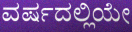
ವರ್ಷದಲ್ಲಿಯೇ